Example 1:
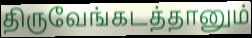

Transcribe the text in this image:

திருவேங்கடத்தானும்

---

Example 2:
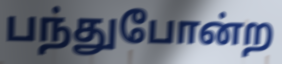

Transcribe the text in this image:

பந்துபோன்ற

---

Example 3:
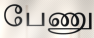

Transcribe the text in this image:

பேணு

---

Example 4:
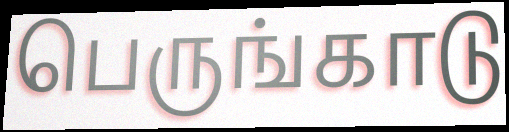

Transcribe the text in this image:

பெருங்காடு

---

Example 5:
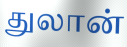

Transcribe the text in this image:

துலான்